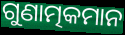
ଗୁଣାତ୍ମକମାନ